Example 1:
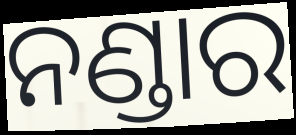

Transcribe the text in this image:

ନଣ୍ଡାର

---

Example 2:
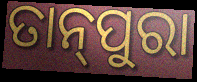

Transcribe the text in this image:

ତାନ୍‌ପୁରା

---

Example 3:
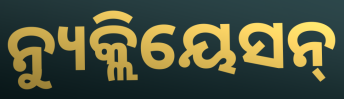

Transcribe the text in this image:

ନ୍ୟୁକ୍ଲିୟେସନ୍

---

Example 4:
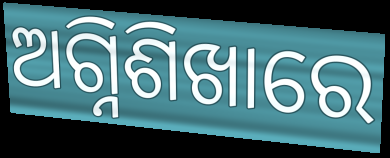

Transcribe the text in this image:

ଅଗ୍ନିଶିଖାରେ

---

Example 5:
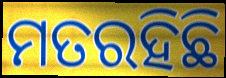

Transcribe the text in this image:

ମତରହିଛି